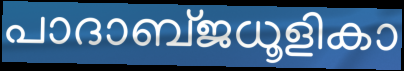
പാദാബ്ജധൂളികാ